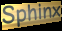
Sphinx